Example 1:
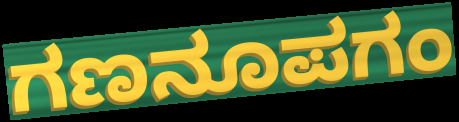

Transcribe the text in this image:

ಗಣನೂಪಗಂ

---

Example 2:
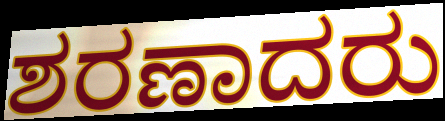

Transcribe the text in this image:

ಶರಣಾದರು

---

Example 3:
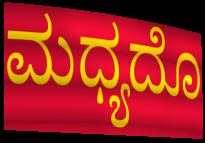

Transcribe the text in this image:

ಮಧ್ಯದೊ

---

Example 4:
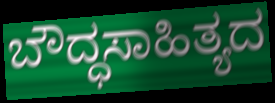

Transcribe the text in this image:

ಬೌದ್ಧಸಾಹಿತ್ಯದ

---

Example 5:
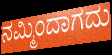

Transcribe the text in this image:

ನಮ್ಮಿಂದಾಗದು